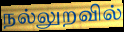
நல்லுறவில்